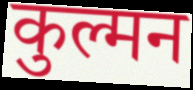
कुल्मन